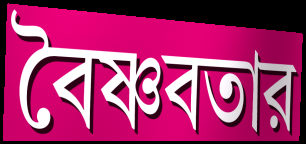
বৈষ্ণবতার